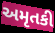
અમૃતકી